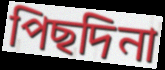
পিছদিনা